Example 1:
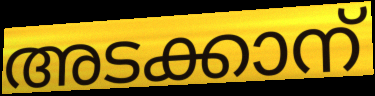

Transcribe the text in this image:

അടക്കാന്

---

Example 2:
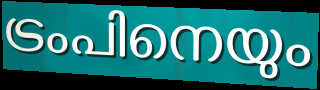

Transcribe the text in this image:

ട്രംപിനെയും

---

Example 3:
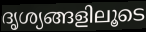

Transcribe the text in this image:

ദൃശ്യങ്ങളിലൂടെ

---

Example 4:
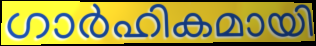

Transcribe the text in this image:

ഗാർഹികമായി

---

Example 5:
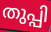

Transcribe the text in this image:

തുപ്പി